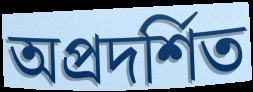
অপ্রদর্শিত